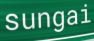
sungai